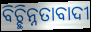
ବିଚ୍ଛିନ୍ନତାବାଦୀ